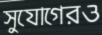
সুযোগেরও